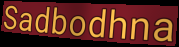
Sadbodhna